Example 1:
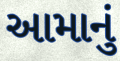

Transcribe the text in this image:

આમાનું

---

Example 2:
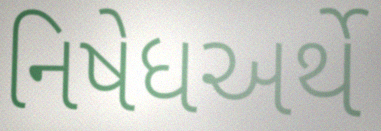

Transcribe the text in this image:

નિષેધઅર્થે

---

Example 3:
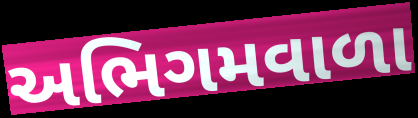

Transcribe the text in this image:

અભિગમવાળા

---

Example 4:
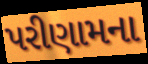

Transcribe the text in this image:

પરીણામના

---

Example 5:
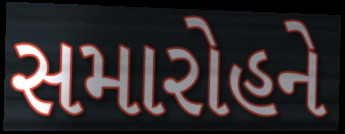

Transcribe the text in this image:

સમારોહને